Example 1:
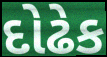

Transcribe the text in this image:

દોઢેક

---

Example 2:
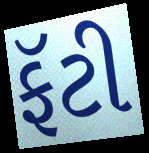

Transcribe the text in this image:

ફૅટી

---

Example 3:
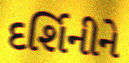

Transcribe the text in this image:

દર્શિનીને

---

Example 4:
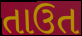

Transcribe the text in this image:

તાઉત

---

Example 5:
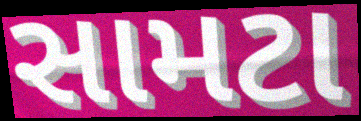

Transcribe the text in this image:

સામટા